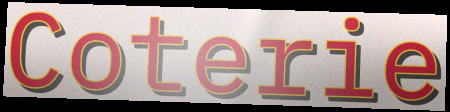
Coterie